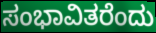
ಸಂಭಾವಿತರೆಂದು